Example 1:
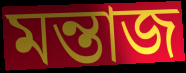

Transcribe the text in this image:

মন্তাজ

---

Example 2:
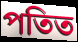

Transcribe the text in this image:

পতিত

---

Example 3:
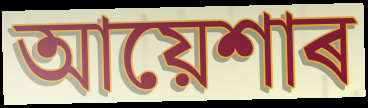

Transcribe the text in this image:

আয়েশাৰ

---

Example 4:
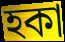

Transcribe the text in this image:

হকা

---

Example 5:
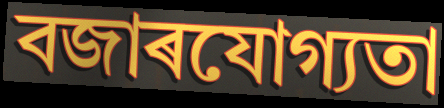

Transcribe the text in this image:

বজাৰযোগ্যতা